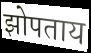
झोपताय